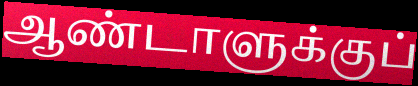
ஆண்டாளுக்குப்